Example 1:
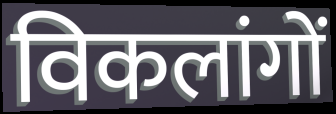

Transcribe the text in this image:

विकलांगों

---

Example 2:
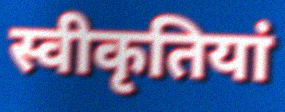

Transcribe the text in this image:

स्वीकृतियां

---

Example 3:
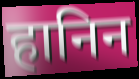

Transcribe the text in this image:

हानिन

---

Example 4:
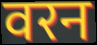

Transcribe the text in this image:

वरन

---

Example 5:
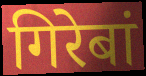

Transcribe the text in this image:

गिरेबां